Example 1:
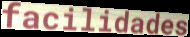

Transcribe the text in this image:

facilidades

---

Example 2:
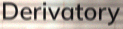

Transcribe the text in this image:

Derivatory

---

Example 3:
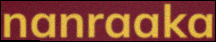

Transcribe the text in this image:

nanraaka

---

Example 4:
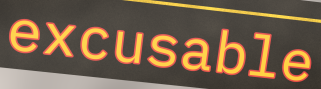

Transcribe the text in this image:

excusable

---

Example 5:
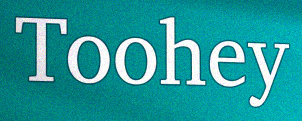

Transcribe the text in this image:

Toohey